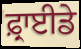
ਫ਼੍ਰਾਈਡੇ